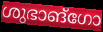
ശുഭാങ്ഗോ